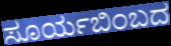
ಸೂರ್ಯಬಿಂಬದ